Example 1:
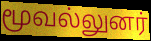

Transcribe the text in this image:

மூவல்லுனர்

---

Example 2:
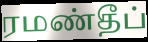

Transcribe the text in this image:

ரமண்தீப்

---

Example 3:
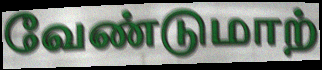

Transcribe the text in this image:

வேண்டுமாற்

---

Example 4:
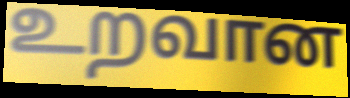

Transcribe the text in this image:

உறவான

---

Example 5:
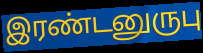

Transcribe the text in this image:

இரண்டனுருபு